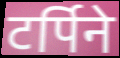
टर्पिने